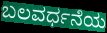
ಬಲವರ್ಧನೆಯ